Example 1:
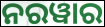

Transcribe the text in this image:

ନରୱାର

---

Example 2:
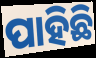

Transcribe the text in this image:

ପାହିଛି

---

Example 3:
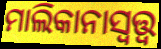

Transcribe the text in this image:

ମାଲିକାନାସ୍ୱତ୍ତ୍ୱ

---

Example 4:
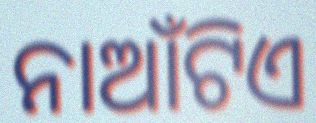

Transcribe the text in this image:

ନାଆଁଟିଏ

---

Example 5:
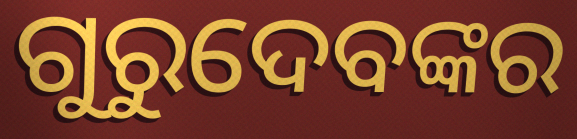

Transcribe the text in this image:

ଗୁରୁଦେବଙ୍କର